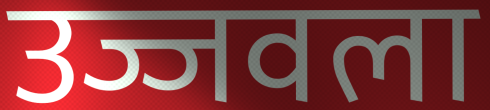
उज्जवला